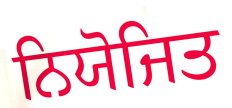
ਨਿਯੋਜਿਤ